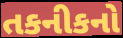
તકનીકનો